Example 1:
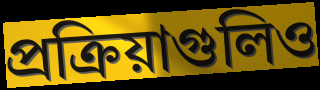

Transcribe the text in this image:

প্রক্রিয়াগুলিও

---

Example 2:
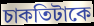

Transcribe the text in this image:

চাকতিটাকে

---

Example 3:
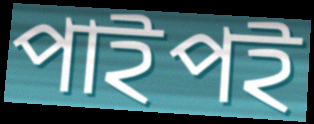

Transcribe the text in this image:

পাইপই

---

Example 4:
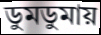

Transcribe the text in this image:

ডুমডুমায়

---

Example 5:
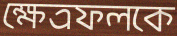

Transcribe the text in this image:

ক্ষেত্রফলকে